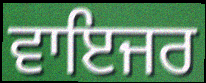
ਵਾਇਜਰ